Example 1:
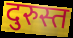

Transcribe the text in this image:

दुरुस्त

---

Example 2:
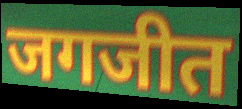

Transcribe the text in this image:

जगजीत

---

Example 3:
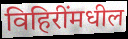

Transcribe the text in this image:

विहिरींमधील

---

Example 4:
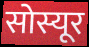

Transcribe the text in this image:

सोस्यूर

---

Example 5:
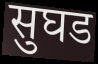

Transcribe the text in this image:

सुघड